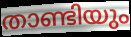
താണ്ടിയും